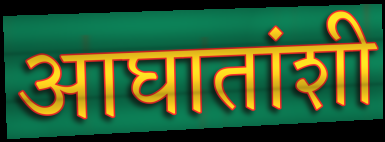
आघातांशी